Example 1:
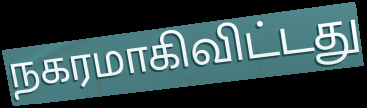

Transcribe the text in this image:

நகரமாகிவிட்டது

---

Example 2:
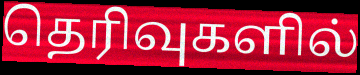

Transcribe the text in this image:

தெரிவுகளில்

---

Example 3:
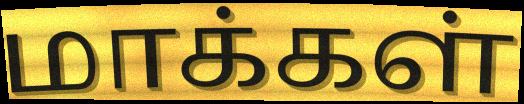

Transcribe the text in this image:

மாக்கள்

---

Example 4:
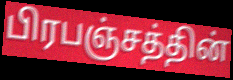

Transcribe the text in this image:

பிரபஞ்சத்தின்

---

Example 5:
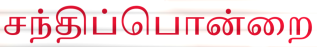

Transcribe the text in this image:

சந்திப்பொன்றை